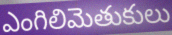
ఎంగిలిమెతుకులు